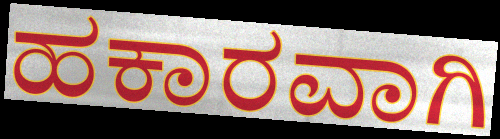
ಹಕಾರವಾಗಿ